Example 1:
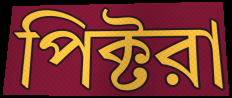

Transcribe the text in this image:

পিক্টরা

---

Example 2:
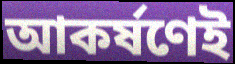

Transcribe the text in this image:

আকর্ষণেই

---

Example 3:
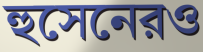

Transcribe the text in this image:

হুসেনেরও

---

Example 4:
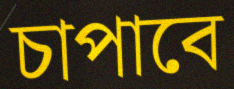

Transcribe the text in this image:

চাপাবে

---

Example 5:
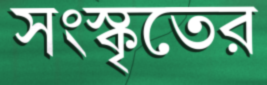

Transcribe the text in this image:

সংস্কৃতের